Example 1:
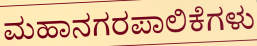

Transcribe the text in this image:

ಮಹಾನಗರಪಾಲಿಕೆಗಳು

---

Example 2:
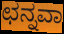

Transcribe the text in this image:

ಛನ್ನವಾ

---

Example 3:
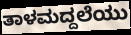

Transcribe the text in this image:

ತಾಳಮದ್ದಲೆಯು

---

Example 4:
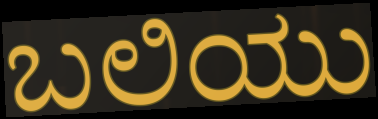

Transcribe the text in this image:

ಬಲಿಯು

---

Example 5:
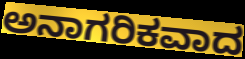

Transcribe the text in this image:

ಅನಾಗರಿಕವಾದ